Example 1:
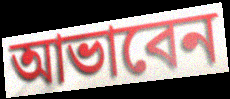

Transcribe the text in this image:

আভাবেন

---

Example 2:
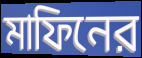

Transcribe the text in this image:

মাফিনের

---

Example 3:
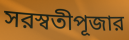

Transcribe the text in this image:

সরস্বতীপূজার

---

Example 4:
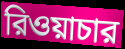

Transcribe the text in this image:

রিওয়াচার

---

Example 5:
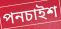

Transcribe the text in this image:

পনচাইশ